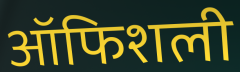
ऑफिशली